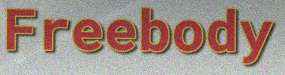
Freebody